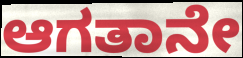
ಆಗತಾನೇ